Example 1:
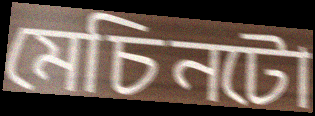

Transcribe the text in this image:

মেচিনটো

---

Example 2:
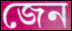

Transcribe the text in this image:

জেন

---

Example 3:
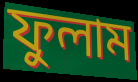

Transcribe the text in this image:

ফুলাম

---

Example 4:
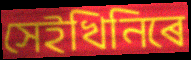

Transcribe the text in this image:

সেইখিনিৰে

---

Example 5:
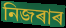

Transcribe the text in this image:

নিজৰাৰ